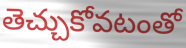
తెచ్చుకోవటంతో